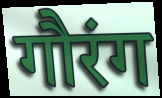
गौरंग